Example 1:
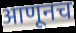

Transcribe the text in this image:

आणूनच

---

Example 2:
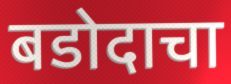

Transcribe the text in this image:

बडोदाचा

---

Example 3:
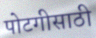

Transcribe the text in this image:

पोटगीसाठी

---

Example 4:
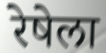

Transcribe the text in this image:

रेषेला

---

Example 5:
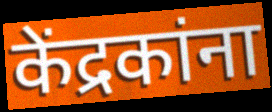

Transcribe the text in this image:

केंद्रकांना